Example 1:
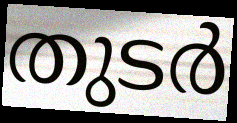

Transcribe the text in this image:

തുടർ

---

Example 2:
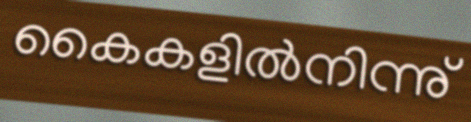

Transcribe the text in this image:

കൈകളിൽനിന്നു്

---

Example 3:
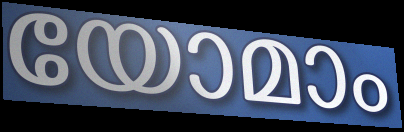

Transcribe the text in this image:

യോമാം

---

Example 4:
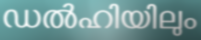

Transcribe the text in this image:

ഡൽഹിയിലും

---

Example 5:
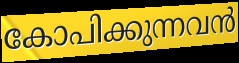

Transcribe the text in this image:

കോപിക്കുന്നവൻ